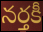
నర్తకీ